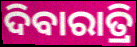
ଦିବାରାତ୍ରି